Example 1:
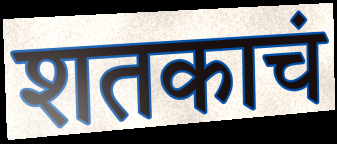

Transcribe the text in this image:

शतकाचं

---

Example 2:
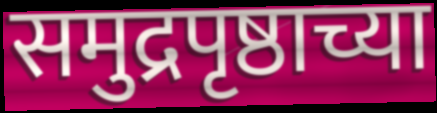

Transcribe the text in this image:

समुद्रपृष्ठाच्या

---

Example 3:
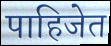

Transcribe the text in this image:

पाहिजेत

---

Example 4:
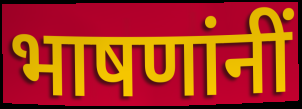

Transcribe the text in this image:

भाषणांनीं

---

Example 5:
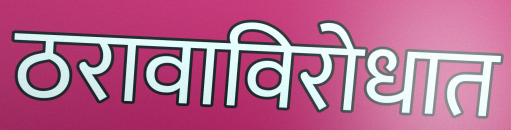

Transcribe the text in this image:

ठरावाविरोधात